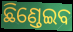
ଛିଣ୍ଡେଇବ